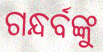
ଗନ୍ଧର୍ବଙ୍କୁ